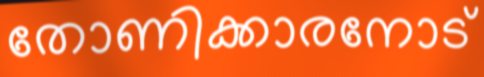
തോണിക്കാരനോട്